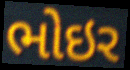
ભોઇર